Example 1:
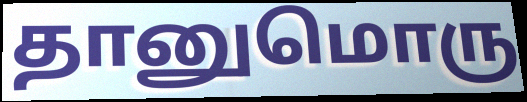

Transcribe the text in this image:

தானுமொரு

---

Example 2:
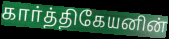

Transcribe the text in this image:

கார்த்திகேயனின்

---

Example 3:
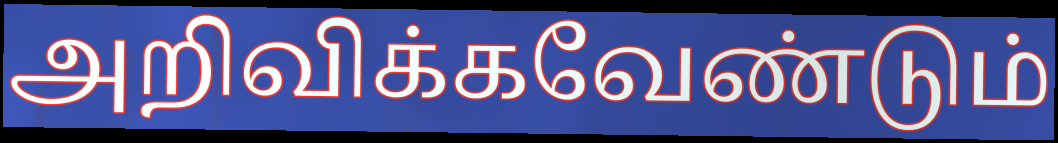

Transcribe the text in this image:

அறிவிக்கவேண்டும்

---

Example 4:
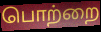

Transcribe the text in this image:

பொற்றை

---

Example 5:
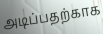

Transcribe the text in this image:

அடிப்பதற்காக